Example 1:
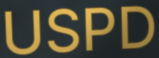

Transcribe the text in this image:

USPD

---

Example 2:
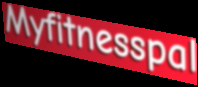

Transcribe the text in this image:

Myfitnesspal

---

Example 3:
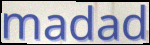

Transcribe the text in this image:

madad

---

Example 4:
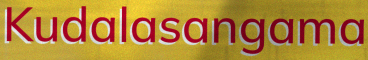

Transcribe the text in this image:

Kudalasangama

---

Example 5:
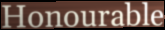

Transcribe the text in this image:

Honourable